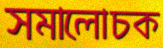
সমালোচক